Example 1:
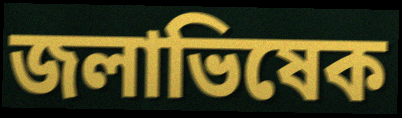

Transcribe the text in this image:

জলাভিষেক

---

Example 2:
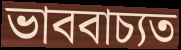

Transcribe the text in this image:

ভাববাচ্যত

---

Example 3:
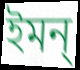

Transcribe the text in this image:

ইমন্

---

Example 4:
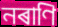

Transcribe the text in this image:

নৰাণি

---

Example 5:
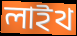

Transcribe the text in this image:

লাইথ